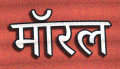
मॉरल